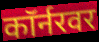
कॉर्नरवर